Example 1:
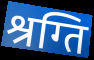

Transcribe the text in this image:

श्रग्ति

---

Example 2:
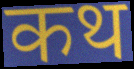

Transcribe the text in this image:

कथ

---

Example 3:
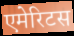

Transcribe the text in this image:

एमेरिटस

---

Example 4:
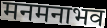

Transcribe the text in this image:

मनमनाभव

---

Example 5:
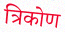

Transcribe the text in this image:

त्रिकोण